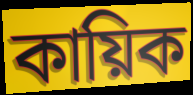
কায়িক